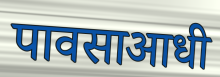
पावसाआधी